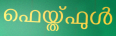
ഫെയ്ത്ഫുൾ